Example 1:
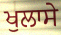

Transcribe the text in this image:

ਖੁਲਾਸੇ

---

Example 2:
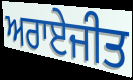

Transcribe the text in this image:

ਅਰਾਏਜੀਤ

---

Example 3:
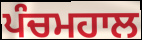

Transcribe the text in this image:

ਪੰਚਮਹਾਲ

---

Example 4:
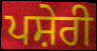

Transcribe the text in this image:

ਪਸ਼ੇਰੀ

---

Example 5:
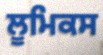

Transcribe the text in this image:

ਲੂਮਿਕਸ